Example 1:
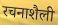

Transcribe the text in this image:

रचनाशैली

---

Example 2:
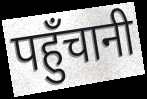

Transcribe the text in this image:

पहुँचानी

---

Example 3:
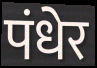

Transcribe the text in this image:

पंधेर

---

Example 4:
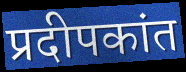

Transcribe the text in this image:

प्रदीपकांत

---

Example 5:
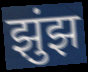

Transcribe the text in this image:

झुंझ